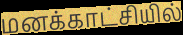
மனக்காட்சியில்